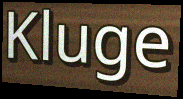
Kluge